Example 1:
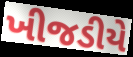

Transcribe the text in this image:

ખીજડીયે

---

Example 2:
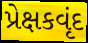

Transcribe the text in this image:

પ્રેક્ષકવૃંદ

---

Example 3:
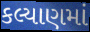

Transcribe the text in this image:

કલ્યાણમાં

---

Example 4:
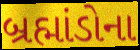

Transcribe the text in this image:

બ્રહ્માંડોના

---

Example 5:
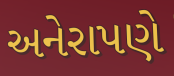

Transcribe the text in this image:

અનેરાપણે